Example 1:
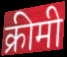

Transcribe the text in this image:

क्रीमी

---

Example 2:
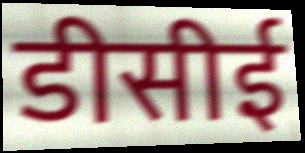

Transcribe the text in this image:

डीसीई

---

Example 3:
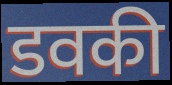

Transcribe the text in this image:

डवकी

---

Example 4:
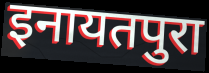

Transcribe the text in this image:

इनायतपुरा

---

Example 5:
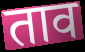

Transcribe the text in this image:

ताव